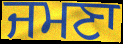
ਜਮਣਾ